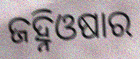
ଜହ୍ନିଓଷାର